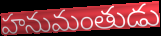
హనుమంతుడు